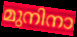
മുനിനാ